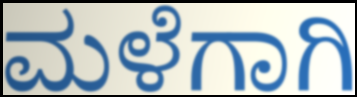
ಮಳೆಗಾಗಿ